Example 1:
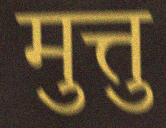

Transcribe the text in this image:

मुत्तु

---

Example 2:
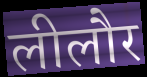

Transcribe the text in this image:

लीलौर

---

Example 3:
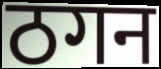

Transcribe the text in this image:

ठगन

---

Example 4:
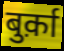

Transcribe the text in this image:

बुर्क़ा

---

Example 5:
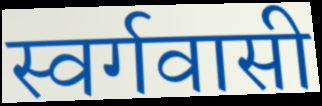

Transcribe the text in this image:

स्वर्गवासी